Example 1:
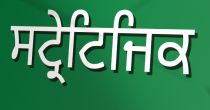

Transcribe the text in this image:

ਸਟ੍ਰੇਟਿਜਿਕ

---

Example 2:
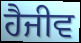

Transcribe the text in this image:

ਹੈਜੀਵ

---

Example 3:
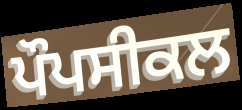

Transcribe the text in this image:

ਪੌਪਸੀਕਲ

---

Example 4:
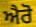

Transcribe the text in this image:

ਐਰੋ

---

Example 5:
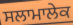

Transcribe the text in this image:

ਸਲਾਮਾਲੇਕ